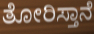
ತೋರಿಸ್ತಾನೆ